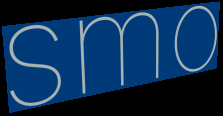
smo